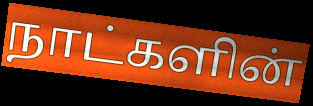
நாட்களின்